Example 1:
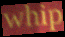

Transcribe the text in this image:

whip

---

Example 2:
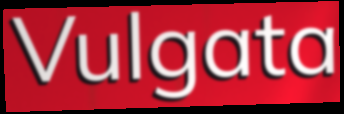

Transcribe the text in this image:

Vulgata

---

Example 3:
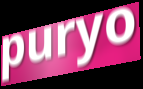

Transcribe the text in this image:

puryo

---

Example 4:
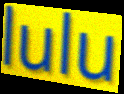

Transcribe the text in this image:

lulu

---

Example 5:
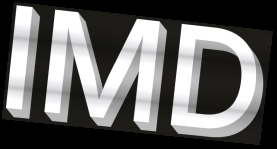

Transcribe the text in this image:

IMD